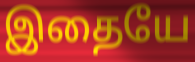
இதையே